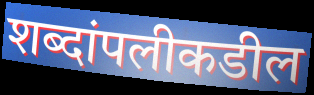
शब्दांपलीकडील